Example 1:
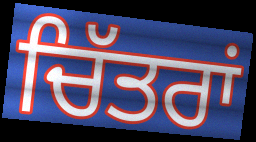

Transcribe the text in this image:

ਚਿੱਤਰਾਂ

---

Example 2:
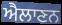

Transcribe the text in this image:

ਐਲਾਣਨ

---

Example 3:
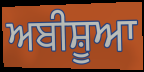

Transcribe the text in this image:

ਅਬੀਸ਼ੂਆ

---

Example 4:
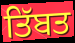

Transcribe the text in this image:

ਤਿੱਬਤ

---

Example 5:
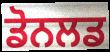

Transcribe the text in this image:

ਡੋਨਲਡ